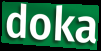
doka